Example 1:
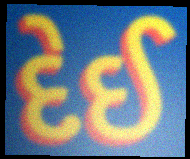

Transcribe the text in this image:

દેઈ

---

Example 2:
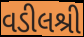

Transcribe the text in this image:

વડીલશ્રી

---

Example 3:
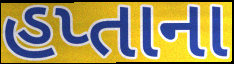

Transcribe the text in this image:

હપ્તાના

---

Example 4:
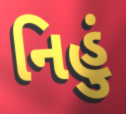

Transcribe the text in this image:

નિહું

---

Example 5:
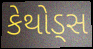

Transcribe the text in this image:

કેથોડ્સ